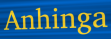
Anhinga